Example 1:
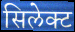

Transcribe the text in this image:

सिलेक्ट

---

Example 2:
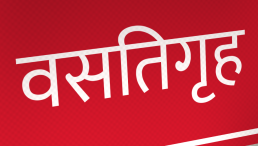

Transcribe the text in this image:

वसतिगृह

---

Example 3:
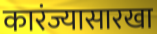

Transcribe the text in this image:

कारंज्यासारखा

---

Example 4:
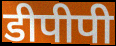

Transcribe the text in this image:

डीपीपी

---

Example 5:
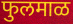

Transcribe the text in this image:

फुलमाळ